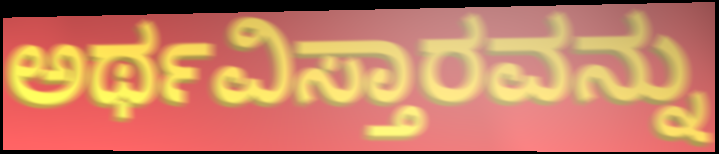
ಅರ್ಥವಿಸ್ತಾರವನ್ನು